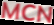
MCN